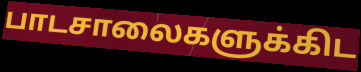
பாடசாலைகளுக்கிட